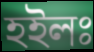
হইলঃ